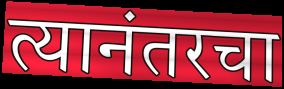
त्यानंतरचा